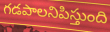
గడపాలనిపిస్తుంది